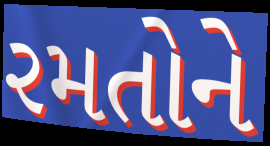
રમતોને